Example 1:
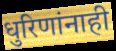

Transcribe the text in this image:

धुरिणांनाही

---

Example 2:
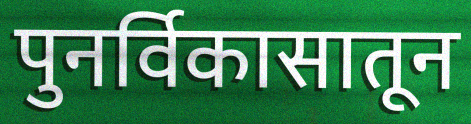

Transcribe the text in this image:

पुनर्विकासातून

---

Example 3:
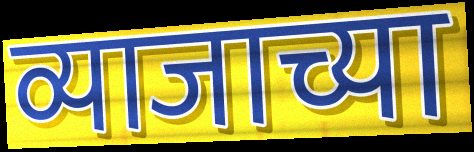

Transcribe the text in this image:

व्याजाच्या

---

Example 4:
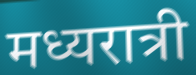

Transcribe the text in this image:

मध्यरात्री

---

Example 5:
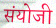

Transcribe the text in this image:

संयोजी